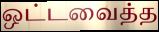
ஒட்டவைத்த